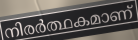
നിരർത്ഥകമാണ്